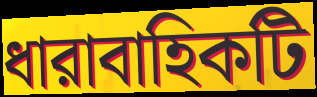
ধারাবাহিকটি